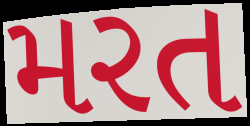
મરત